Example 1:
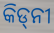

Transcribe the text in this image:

କିଡ୍‌ନୀ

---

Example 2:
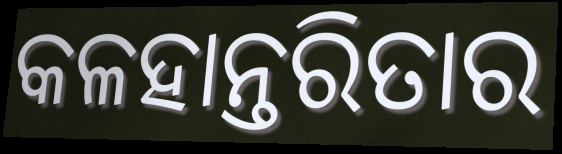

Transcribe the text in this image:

କଳହାନ୍ତରିତାର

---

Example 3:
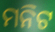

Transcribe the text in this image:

ମନିଟ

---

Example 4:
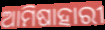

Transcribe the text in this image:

ଆମିଷାହାରୀ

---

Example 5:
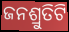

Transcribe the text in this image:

ଜନଶ୍ରୁତିଟି